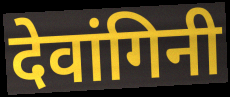
देवांगिनी